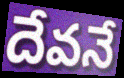
దేవనే